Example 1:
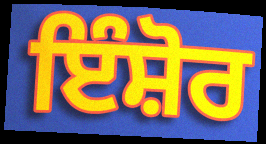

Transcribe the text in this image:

ਇੰਸ਼ੋਰ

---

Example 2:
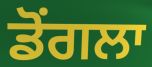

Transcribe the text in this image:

ਡੋਂਗਲਾ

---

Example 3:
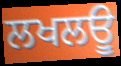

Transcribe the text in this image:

ਲਖਲਊ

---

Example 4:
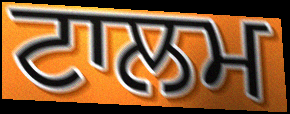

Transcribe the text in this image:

ਟਾਲਮ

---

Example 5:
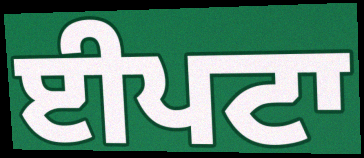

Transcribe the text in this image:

ਈਪਟਾ